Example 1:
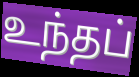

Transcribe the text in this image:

உந்தப்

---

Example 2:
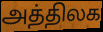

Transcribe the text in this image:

அத்திலக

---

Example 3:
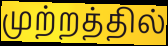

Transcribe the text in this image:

முற்றத்தில்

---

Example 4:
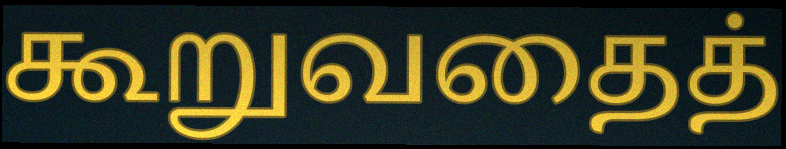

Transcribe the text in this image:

கூறுவதைத்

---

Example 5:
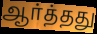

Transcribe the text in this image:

ஆர்த்தது